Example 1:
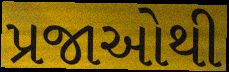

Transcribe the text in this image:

પ્રજાઓથી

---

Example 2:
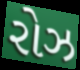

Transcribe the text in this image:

રોઝ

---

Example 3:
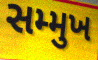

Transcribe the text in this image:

સમ્મુખ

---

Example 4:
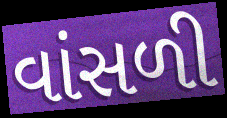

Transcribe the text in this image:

વાંસળી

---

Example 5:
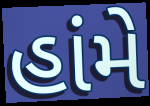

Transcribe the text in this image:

હાંમે